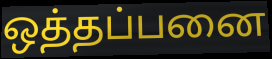
ஒத்தப்பனை